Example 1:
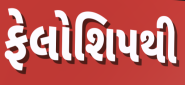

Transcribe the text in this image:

ફેલોશિપથી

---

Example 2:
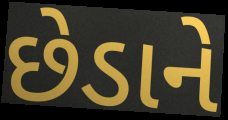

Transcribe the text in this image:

છેડાને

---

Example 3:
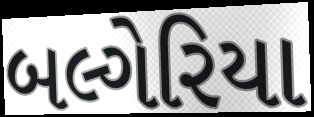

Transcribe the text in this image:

બલ્ગેરિયા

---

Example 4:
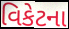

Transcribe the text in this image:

વિકેટના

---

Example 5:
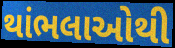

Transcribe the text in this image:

થાંભલાઓથી